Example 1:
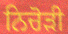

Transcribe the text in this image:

ਨਿਚੋੜੀ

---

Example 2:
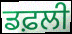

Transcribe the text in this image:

ਡਫ਼ਲੀ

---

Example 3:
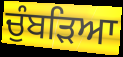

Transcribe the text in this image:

ਚੁੰਬੜਿਆ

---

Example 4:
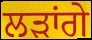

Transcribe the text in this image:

ਲੜਾਂਗੇ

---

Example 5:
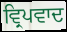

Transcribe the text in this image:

ਵ੍ਰਿਪਵਾਦ